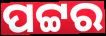
ପଟ୍ଟର